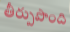
తీర్పుపొంది